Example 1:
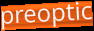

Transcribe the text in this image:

preoptic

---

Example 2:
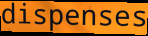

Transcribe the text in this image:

dispenses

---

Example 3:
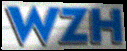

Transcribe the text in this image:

WZH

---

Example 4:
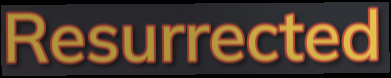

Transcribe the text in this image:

Resurrected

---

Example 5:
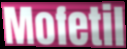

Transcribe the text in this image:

Mofetil